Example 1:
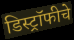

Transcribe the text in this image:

डिस्ट्रॉफीचे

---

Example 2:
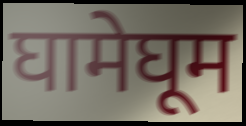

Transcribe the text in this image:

घामेघूम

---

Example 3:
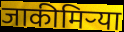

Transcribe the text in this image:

जाकीमिऱ्या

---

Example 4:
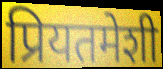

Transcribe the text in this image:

प्रियतमेशी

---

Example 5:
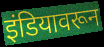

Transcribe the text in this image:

इंडियावरून